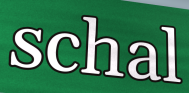
schal